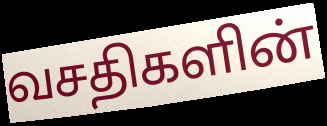
வசதிகளின்